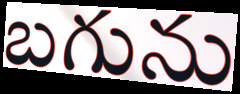
బగును